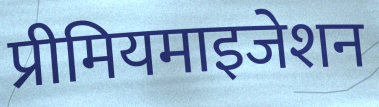
प्रीमियमाइजेशन